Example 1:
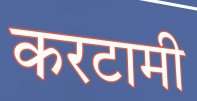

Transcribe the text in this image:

करटामी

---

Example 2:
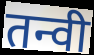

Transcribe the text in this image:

तन्वी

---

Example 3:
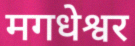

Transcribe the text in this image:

मगधेश्वर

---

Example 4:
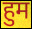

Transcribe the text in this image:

हुम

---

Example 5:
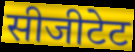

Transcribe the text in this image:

सीजीटेट